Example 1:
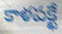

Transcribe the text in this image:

కాళపక్ఖే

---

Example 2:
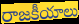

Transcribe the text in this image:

రాజకీయాలు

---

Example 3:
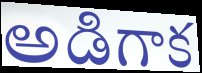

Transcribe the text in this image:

అడిగాక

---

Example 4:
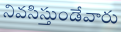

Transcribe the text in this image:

నివసిస్తుండేవారు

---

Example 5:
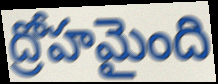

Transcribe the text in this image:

ద్రోహమైంది